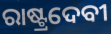
ରାଷ୍ଟ୍ରଦେବୀ